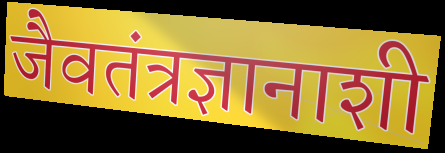
जैवतंत्रज्ञानाशी